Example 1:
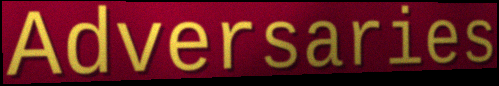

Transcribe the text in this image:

Adversaries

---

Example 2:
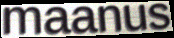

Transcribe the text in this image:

maanus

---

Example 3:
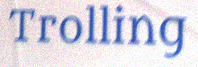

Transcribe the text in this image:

Trolling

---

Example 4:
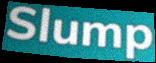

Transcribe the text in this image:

Slump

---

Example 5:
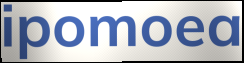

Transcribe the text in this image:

ipomoea